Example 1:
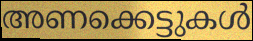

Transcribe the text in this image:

അണക്കെട്ടുകൾ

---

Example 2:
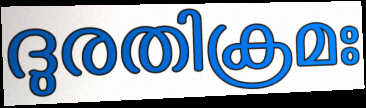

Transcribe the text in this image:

ദുരതിക്രമഃ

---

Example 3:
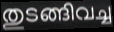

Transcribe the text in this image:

തുടങ്ങിവച്ച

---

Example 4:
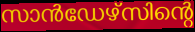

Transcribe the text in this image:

സാൻഡേഴ്സിന്റെ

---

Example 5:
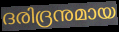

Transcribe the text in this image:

ദരിദ്രനുമായ